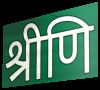
श्रीणि